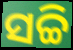
ସଚ୍ଚି